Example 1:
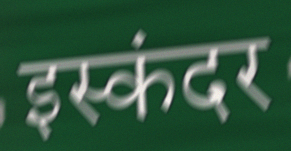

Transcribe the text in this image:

इस्कंदर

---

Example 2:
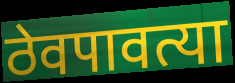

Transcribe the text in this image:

ठेवपावत्या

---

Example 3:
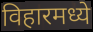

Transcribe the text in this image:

विहारमध्ये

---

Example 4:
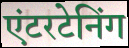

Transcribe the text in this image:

एंटरटेनिंग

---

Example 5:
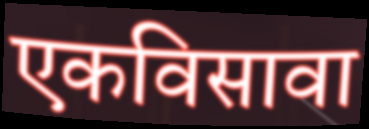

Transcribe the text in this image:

एकविसावा